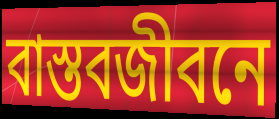
বাস্তবজীবনে